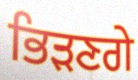
ਭਿੜਣਗੇ